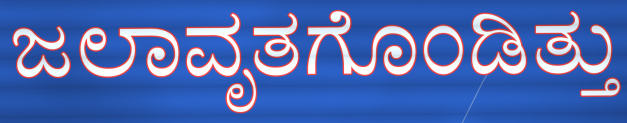
ಜಲಾವೃತಗೊಂಡಿತ್ತು